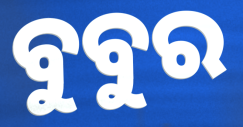
ବୁବୁର